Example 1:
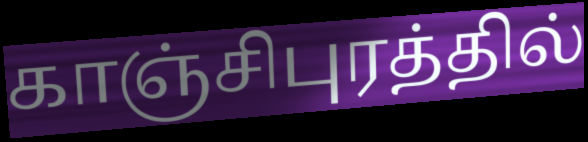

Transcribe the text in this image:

காஞ்சிபுரத்தில்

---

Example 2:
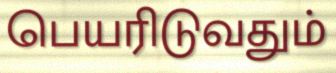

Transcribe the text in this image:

பெயரிடுவதும்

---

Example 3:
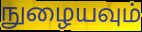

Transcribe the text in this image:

நுழையவும்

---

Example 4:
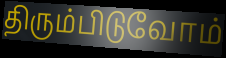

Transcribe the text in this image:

திரும்பிடுவோம்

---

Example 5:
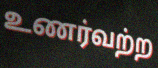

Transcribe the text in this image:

உணர்வற்ற